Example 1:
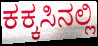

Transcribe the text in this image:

ಕಕ್ಕಸಿನಲ್ಲಿ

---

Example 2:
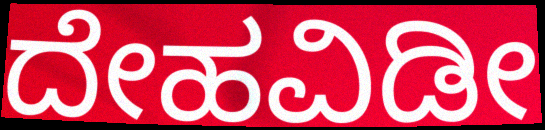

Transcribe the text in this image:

ದೇಹವಿಡೀ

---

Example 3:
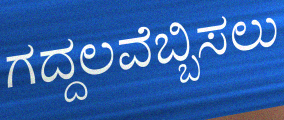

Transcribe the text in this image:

ಗದ್ದಲವೆಬ್ಬಿಸಲು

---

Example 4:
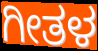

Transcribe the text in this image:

ಗೀತಳ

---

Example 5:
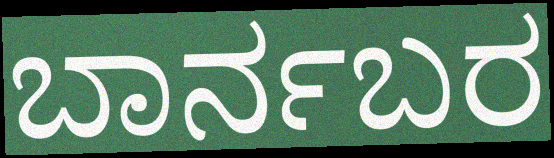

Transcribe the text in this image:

ಬಾರ್ನಬರ